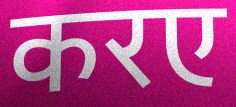
करए